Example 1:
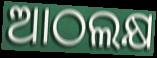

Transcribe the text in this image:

ଆଠଲକ୍ଷ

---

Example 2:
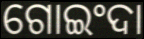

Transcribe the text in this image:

ଗୋଇଂଦା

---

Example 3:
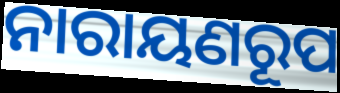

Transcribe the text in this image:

ନାରାୟଣରୂପ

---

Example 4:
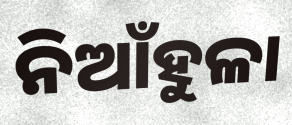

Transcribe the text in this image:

ନିଆଁହୁଳା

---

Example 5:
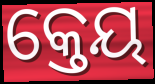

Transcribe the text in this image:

କ୍ତେୟ